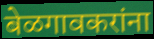
बेळगावकरांना